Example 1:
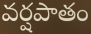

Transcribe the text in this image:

వర్షపాతం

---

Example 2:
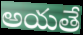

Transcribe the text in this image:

అయతే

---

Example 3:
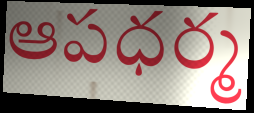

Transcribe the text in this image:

ఆపధర్మ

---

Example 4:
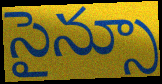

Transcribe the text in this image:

సైన్సూ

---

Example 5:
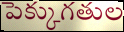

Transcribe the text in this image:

పెక్కుగతుల